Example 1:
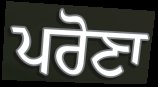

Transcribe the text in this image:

ਪਰੋਣਾ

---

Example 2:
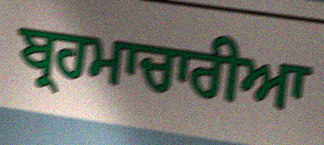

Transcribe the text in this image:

ਬ੍ਰਹਮਾਚਾਰੀਆ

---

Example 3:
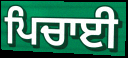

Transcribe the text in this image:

ਪਿਚਾਈ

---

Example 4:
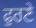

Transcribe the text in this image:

ਫੁਰਣੇ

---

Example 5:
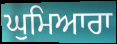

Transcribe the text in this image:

ਘੁਮਿਆਰਾ